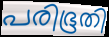
പരിഭൂതി